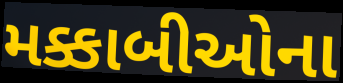
મક્કાબીઓના